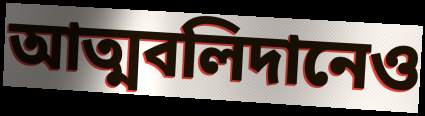
আত্মবলিদানেও